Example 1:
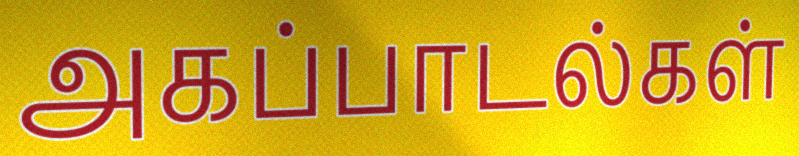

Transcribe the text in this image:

அகப்பாடல்கள்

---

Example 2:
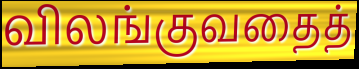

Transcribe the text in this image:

விலங்குவதைத்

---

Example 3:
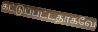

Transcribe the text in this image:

கட்டுப்பட்டதாகவே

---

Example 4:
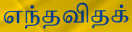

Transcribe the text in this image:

எந்தவிதக்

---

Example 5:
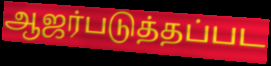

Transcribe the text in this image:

ஆஜர்படுத்தப்பட